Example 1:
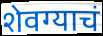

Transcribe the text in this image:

शेवग्याचं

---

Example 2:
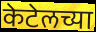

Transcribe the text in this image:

केटेलच्या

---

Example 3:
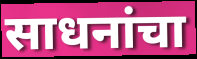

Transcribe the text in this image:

साधनांचा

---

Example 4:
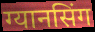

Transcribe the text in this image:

ग्यानसिंग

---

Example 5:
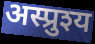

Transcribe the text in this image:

अस्प्रुश्य